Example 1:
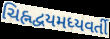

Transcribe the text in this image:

ચિહ્નદ્વયમધ્યવર્તી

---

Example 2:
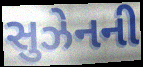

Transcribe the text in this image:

સુઝેનની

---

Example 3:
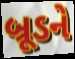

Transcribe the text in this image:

બ્રૂડને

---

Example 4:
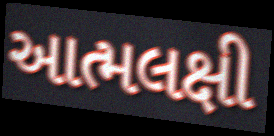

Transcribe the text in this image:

આત્મલક્ષી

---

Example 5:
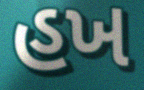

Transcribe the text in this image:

હખ